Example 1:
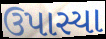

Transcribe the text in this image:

ઉપાસ્યા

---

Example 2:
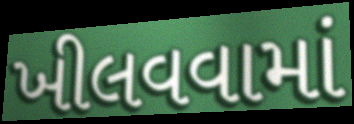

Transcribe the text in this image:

ખીલવવામાં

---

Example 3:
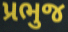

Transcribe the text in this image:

પ્રભુજ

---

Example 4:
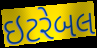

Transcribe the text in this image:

ઇટરેબલ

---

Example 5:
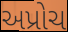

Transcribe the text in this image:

અપ્રોચ